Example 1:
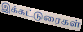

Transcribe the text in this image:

இக்கட்டுரைகள்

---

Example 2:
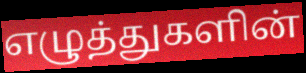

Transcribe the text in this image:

எழுத்துகளின்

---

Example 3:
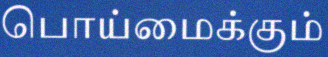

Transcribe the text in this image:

பொய்மைக்கும்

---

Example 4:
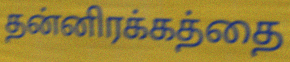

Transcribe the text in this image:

தன்னிரக்கத்தை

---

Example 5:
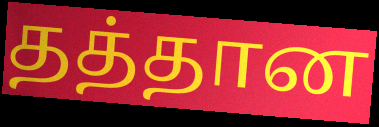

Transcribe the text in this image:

தத்தான